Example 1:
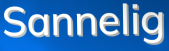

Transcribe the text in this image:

Sannelig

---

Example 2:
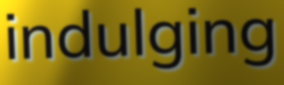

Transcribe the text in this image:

indulging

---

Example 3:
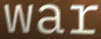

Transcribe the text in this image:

war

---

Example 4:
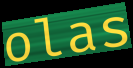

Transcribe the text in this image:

olas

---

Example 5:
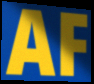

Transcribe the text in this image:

AF